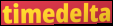
timedelta